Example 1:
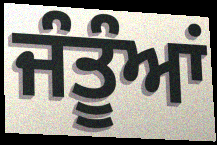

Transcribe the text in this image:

ਜੰਤੂੰਆਂ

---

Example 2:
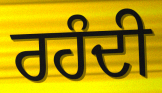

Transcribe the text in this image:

ਰਹੰਦੀ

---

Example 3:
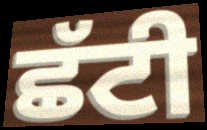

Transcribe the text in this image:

ਛੱਟੀ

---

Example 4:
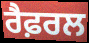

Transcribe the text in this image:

ਰੈਫ਼ਰਲ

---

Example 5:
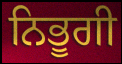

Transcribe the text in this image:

ਨਿਭੂਗੀ